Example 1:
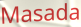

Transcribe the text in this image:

Masada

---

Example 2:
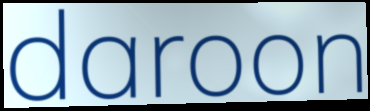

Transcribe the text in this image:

daroon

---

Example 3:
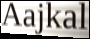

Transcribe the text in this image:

Aajkal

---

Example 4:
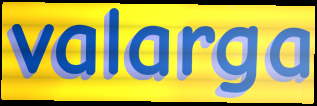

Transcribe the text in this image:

valarga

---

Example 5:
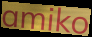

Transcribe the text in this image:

amiko